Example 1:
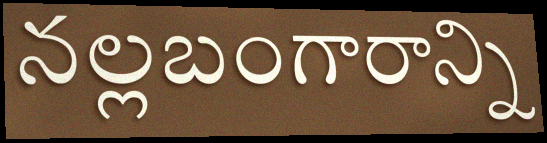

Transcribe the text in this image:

నల్లబంగారాన్ని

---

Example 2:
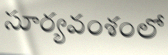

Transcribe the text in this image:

సూర్యవంశంలో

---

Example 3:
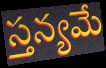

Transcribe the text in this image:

స్తన్యమే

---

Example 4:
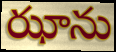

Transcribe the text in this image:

ఝాను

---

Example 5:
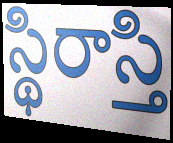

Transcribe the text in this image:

స్థిరాస్తి